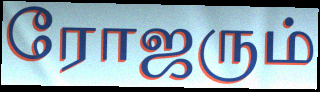
ரோஜரும்